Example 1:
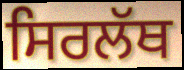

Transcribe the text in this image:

ਸਿਰਲੱਥ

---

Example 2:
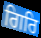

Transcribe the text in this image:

ਗਿਰਿ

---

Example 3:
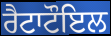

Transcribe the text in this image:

ਰੈਟਾਟੌਇਲ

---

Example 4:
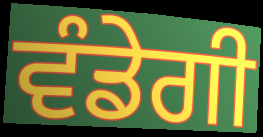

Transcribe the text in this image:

ਵੰਡੇਗੀ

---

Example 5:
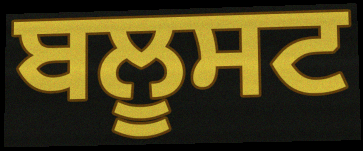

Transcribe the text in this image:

ਬਲੂਸਟ